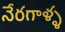
నేరగాళ్ళ